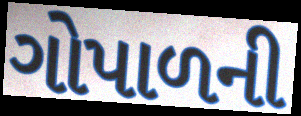
ગોપાળની